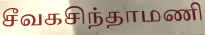
சீவகசிந்தாமணி